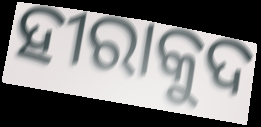
ହୀରାକୁଦ